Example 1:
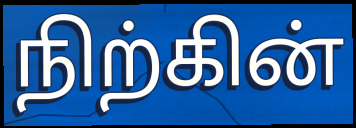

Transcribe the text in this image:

நிற்கின்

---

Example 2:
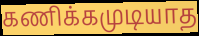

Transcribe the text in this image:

கணிக்கமுடியாத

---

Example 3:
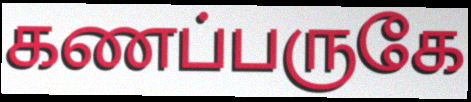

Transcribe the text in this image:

கணப்பருகே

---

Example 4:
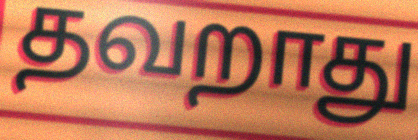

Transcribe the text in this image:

தவறாது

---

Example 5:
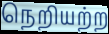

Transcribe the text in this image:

நெறியற்ற